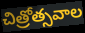
చిత్రోత్సవాల